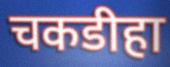
चकडीहा